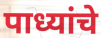
पाध्यांचे